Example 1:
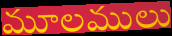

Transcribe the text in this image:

మూలములు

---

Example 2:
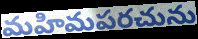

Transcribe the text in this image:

మహిమపరచును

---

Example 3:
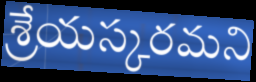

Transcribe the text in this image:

శ్రేయస్కరమని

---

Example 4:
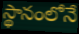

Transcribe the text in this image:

స్థానంలోనే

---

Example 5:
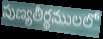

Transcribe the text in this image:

పుణ్యతీర్థములలో